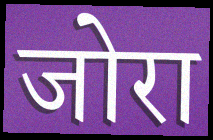
जोरा